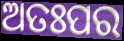
ଅତଃପର